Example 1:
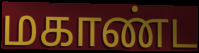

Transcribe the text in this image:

மகாண்ட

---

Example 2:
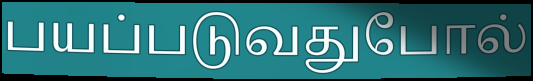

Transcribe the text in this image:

பயப்படுவதுபோல்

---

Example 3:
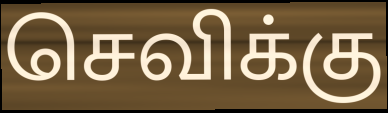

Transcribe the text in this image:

செவிக்கு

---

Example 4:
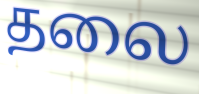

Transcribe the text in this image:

தலை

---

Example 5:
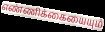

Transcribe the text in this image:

எண்ணிக்கையையும்